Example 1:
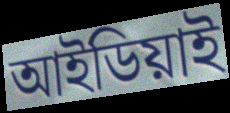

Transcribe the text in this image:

আইডিয়াই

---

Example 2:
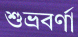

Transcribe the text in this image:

শুভ্রবর্ণা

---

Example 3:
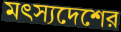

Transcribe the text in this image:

মৎস্যদেশের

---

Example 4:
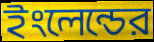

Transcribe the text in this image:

ইংলেন্ডের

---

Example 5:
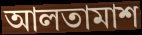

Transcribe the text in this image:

আলতামাশ